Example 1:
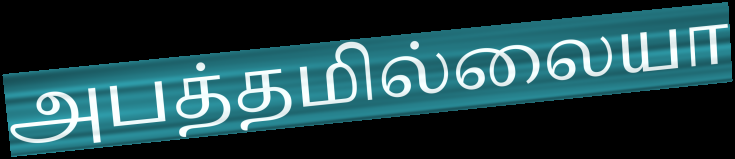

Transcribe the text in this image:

அபத்தமில்லையா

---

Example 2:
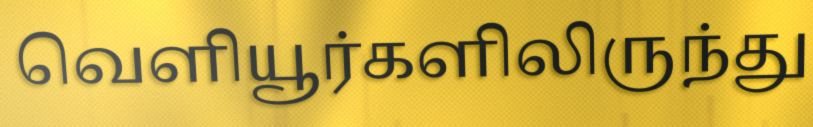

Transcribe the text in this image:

வெளியூர்களிலிருந்து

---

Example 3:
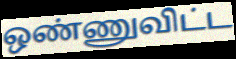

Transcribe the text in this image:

ஒண்ணுவிட்ட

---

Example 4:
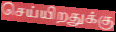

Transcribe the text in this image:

செய்யிறதுக்கு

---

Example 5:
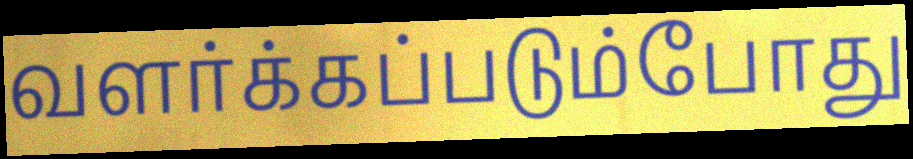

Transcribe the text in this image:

வளர்க்கப்படும்போது